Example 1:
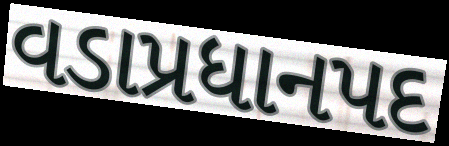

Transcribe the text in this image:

વડાપ્રધાનપદ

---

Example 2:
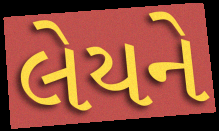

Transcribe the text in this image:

લેયને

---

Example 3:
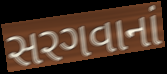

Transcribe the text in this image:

સરગવાનાં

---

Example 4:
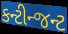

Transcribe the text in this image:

કન્ટીન્જન્ટ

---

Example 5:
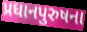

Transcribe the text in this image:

પ્રધાનપુરુષના